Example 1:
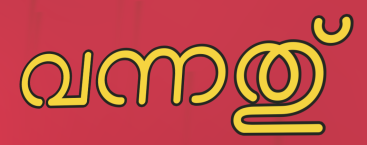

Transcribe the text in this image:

വന്നതു്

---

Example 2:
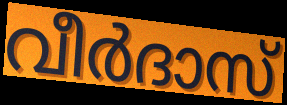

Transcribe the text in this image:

വീർദാസ്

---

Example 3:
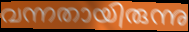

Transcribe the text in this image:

വന്നതായിരുന്നു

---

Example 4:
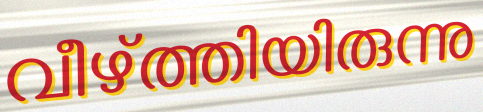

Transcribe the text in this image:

വീഴ്ത്തിയിരുന്നു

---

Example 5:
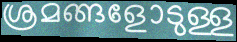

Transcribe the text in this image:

ശ്രമങ്ങളോടുള്ള